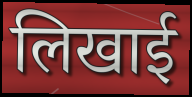
लिखाई